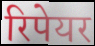
रिपेयर